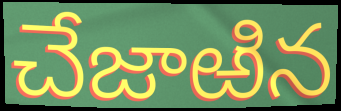
చేజాఱిన